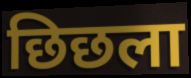
छिछला